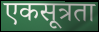
एकसूत्रता